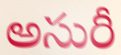
అసురీ